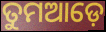
ତୁମଆଡ଼େ